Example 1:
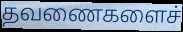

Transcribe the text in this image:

தவணைகளைச்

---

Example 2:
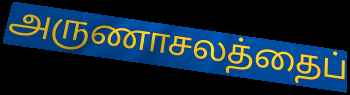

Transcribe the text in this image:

அருணாசலத்தைப்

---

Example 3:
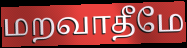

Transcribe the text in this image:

மறவாதீமே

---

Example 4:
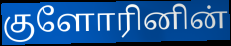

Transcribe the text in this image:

குளோரினின்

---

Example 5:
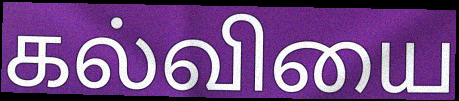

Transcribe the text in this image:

கல்வியை